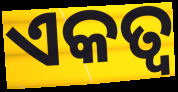
ଏକତ୍ୱ